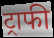
ट्राफी